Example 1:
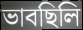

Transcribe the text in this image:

ভাবছিলি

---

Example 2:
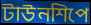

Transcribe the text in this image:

টাউনশিপে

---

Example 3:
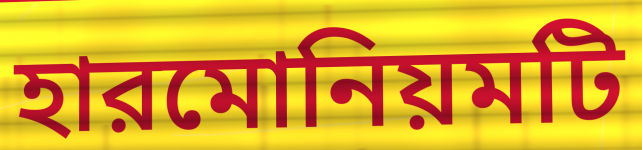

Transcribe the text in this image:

হারমোনিয়মটি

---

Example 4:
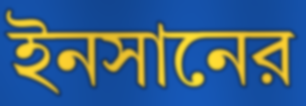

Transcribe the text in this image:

ইনসানের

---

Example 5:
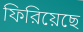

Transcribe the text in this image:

ফিরিয়েছে